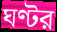
ঘণ্টর